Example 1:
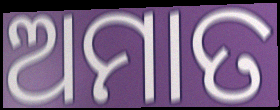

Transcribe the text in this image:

ଅମାତ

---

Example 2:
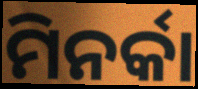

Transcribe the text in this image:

ମିନର୍କା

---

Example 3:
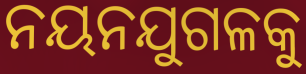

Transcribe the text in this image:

ନୟନଯୁଗଳକୁ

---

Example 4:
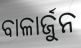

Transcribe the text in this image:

ବାଳାର୍ଜୁନ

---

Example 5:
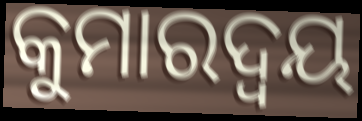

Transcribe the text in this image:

କୁମାରଦ୍ଵୟ